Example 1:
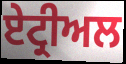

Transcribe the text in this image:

ਏਟ੍ਰੀਅਲ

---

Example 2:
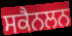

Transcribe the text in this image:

ਸਕੈਨਲਨ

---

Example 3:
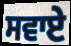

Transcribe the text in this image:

ਸਵਾਏ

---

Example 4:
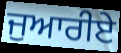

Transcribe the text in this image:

ਜੁਆਰੀਏ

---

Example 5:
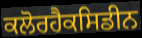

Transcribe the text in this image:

ਕਲੋਰਹੈਕਸਿਡੀਨ